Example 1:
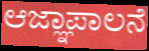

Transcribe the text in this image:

ಆಜ್ಞಾಪಾಲನೆ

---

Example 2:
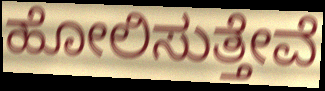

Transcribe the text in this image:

ಹೋಲಿಸುತ್ತೇವೆ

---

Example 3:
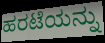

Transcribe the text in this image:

ಹರಟೆಯನ್ನು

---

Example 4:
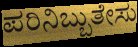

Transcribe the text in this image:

ಪರಿನಿಬ್ಬುತೇಸು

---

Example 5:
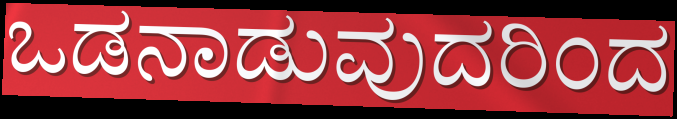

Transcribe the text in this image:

ಒಡನಾಡುವುದರಿಂದ